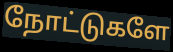
நோட்டுகளே